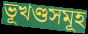
ভূখণ্ডসমূহ